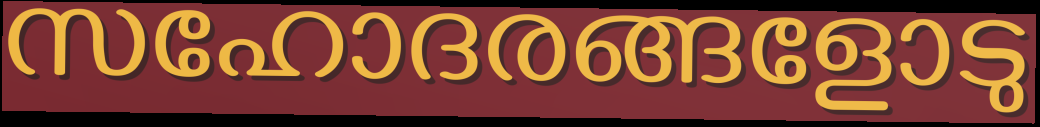
സഹോദരങ്ങളോടു